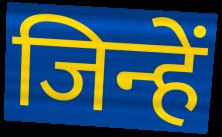
जिन्‍हें